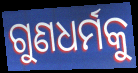
ଗୁଣଧର୍ମକୁ